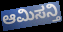
ಆಮಿಸನ್ತಿ